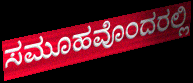
ಸಮೂಹವೊಂದರಲ್ಲಿ